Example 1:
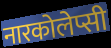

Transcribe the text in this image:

नारकोलेप्सी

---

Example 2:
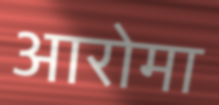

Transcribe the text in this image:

आरोमा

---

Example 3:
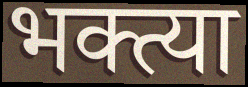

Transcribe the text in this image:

भक्त्या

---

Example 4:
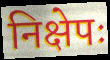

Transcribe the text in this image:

निक्षेपः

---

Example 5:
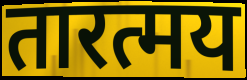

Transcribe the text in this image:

तारत्मय